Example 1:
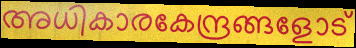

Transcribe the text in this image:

അധികാരകേന്ദ്രങ്ങളോട്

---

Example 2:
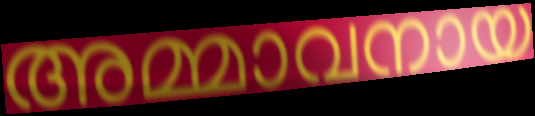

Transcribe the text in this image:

അമ്മാവനായ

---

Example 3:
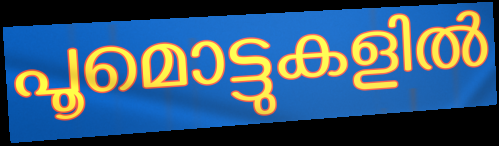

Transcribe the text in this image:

പൂമൊട്ടുകളിൽ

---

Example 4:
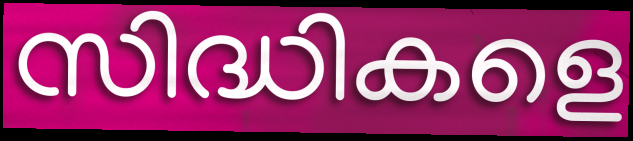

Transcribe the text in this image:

സിദ്ധികളെ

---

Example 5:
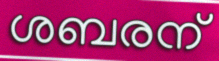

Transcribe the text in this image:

ശബരന്